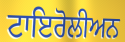
ਟਾਇਰੋਲੀਅਨ